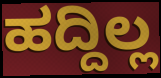
ಹದ್ದಿಲ್ಲ